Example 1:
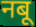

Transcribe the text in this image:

नबू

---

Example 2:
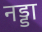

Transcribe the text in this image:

नड्डा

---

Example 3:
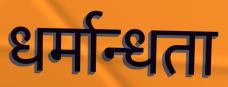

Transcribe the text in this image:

धर्मान्धता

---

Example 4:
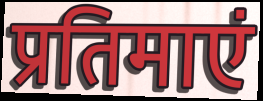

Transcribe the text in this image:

प्रतिमाएं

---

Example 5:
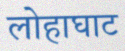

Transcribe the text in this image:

लोहाघाट